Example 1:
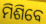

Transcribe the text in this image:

ମିଶିବେ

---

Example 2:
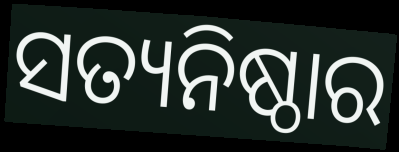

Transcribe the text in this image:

ସତ୍ୟନିଷ୍ଠାର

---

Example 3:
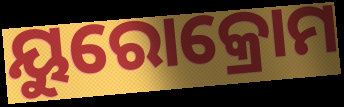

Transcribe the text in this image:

ୟୁରୋକ୍ରୋମ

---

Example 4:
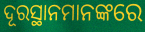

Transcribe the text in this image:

ଦୂରସ୍ଥାନମାନଙ୍କରେ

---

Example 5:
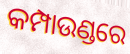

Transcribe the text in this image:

କମ୍ପାଉଣ୍ଡରେ